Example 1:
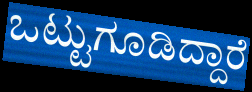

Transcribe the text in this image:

ಒಟ್ಟುಗೂಡಿದ್ದಾರೆ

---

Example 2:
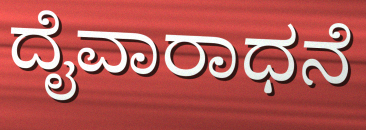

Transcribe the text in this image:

ದೈವಾರಾಧನೆ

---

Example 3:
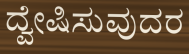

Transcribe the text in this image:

ದ್ವೇಷಿಸುವುದರ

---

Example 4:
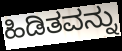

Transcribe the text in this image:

ಹಿಡಿತವನ್ನು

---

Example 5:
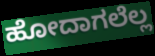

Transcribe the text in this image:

ಹೋದಾಗಲೆಲ್ಲ